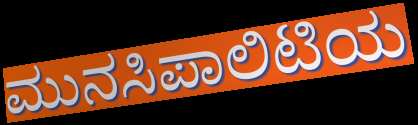
ಮುನಸಿಪಾಲಿಟಿಯ